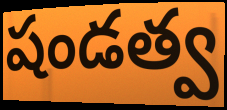
షండత్వ